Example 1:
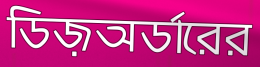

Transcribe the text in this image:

ডিজ়অর্ডারের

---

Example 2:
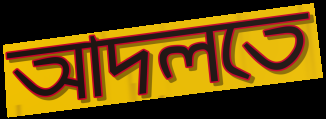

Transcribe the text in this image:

আদলতে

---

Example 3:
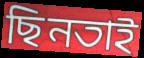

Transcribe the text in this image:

ছিনতাই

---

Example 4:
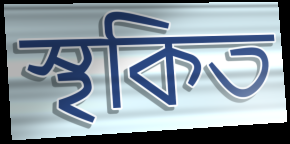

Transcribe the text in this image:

স্থকিত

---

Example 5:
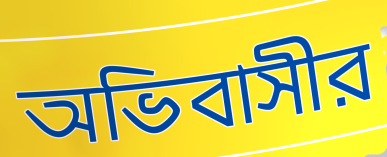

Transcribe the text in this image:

অভিবাসীর